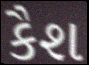
કૈશ